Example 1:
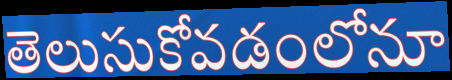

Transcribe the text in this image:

తెలుసుకోవడంలోనూ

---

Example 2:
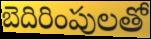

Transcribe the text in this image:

బెదిరింపులతో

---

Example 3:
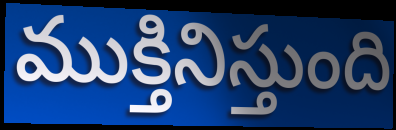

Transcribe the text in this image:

ముక్తినిస్తుంది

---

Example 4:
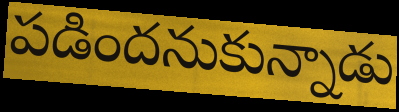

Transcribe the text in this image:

పడిందనుకున్నాడు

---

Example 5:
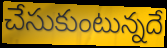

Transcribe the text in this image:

చేసుకుంటున్నదే